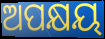
ଅପକ୍ଷୟ